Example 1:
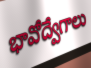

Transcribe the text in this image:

భావోద్వేగాలు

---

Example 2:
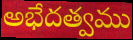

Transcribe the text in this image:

అభేదత్వము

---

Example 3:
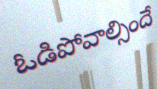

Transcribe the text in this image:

ఓడిపోవాల్సిందే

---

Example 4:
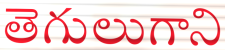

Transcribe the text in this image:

తెగులుగాని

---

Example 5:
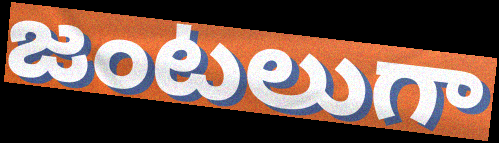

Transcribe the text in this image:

జంటలుగా